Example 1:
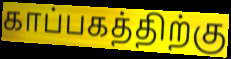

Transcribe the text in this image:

காப்பகத்திற்கு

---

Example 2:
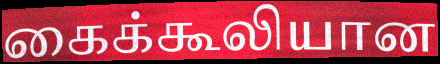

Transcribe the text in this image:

கைக்கூலியான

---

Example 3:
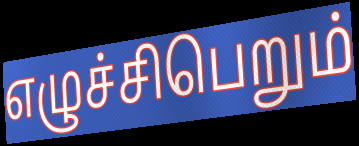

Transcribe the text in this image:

எழுச்சிபெறும்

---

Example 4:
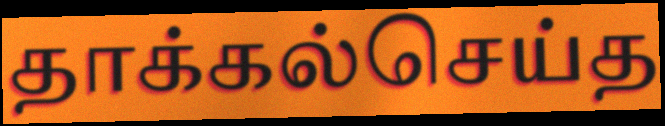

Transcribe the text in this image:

தாக்கல்செய்த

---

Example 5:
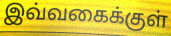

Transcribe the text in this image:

இவ்வகைக்குள்